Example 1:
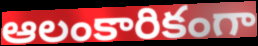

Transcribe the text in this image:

ఆలంకారికంగా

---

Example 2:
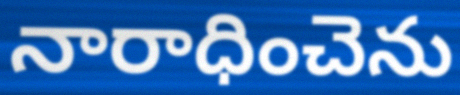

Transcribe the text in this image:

నారాధించెను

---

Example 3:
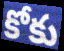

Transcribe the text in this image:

కోకు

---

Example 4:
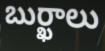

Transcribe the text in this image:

బుర్ఖాలు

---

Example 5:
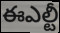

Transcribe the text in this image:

ఈఎల్టీ